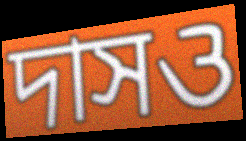
দাসও